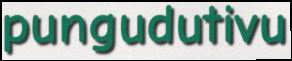
pungudutivu